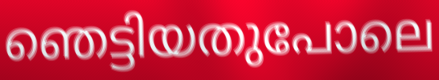
ഞെട്ടിയതുപോലെ